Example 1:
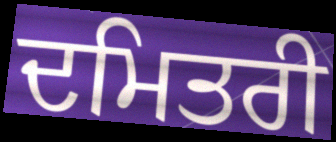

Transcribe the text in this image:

ਦਮਿਤਰੀ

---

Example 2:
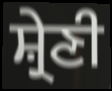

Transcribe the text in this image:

ਸ਼੍ਰੇਣੀ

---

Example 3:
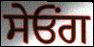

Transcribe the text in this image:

ਸੇਓਂਗ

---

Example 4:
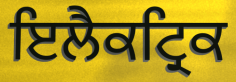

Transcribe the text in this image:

ਇਲੈਕਟ੍ਰਿਕ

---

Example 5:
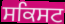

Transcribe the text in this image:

ਸਕਿਸਟ